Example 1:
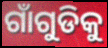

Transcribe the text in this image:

ଗାଁଗୁଡିକୁ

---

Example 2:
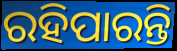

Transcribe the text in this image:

ରହିପାରନ୍ତି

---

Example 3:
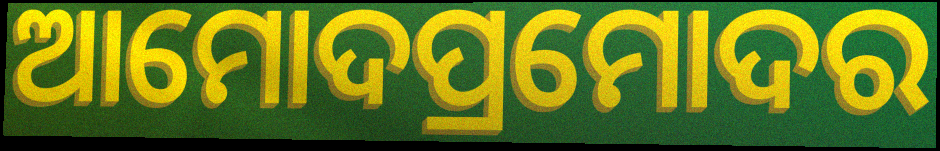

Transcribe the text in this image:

ଆମୋଦପ୍ରମୋଦର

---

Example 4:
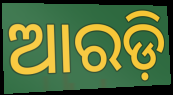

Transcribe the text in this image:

ଆରଡ଼ି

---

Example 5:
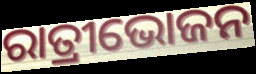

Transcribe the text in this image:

ରାତ୍ରୀଭୋଜନ